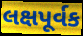
લક્ષપૂર્વક